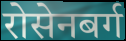
रोसेनबर्ग